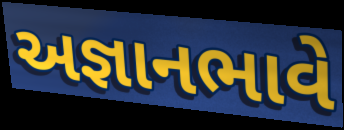
અજ્ઞાનભાવે